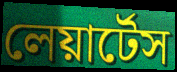
লেয়ার্টেস